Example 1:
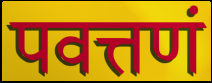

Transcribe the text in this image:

पवत्तणं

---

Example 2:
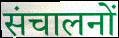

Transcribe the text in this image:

संचालनों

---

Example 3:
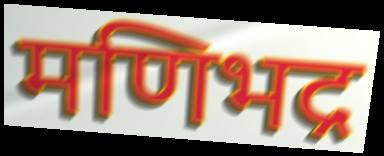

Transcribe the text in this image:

मणिभद्र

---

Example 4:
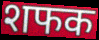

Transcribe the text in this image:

शफक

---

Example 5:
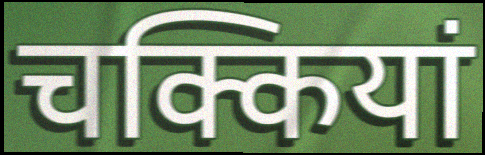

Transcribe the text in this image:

चक्कियां